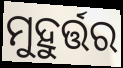
ମୁହୁର୍ତ୍ତର